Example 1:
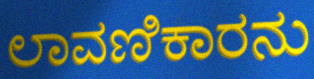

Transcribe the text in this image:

ಲಾವಣಿಕಾರನು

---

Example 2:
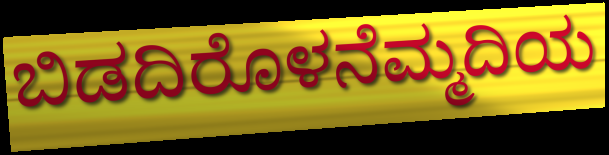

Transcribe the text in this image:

ಬಿಡದಿರೊಳನೆಮ್ಮದಿಯ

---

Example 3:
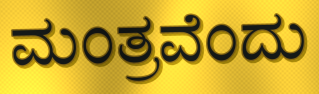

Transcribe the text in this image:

ಮಂತ್ರವೆಂದು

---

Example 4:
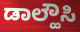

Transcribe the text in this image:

ಡಾಲ್ಹೌಸಿ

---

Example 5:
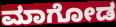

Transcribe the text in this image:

ಮಾಗೋಡ